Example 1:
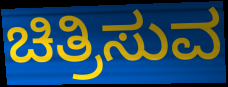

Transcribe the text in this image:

ಚಿತ್ರಿಸುವ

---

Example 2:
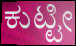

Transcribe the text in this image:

ಕುಟ್ಟೀ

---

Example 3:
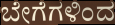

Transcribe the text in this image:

ಬೇಗೆಗಳಿಂದ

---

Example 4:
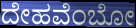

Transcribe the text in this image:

ದೇಹವೆಂಬೋ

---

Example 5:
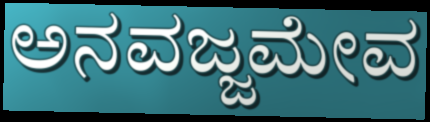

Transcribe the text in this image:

ಅನವಜ್ಜಮೇವ